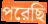
পরেছি